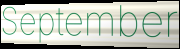
September